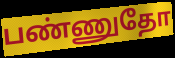
பண்ணுதோ